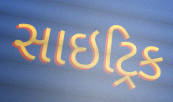
સાઇટ્રિક